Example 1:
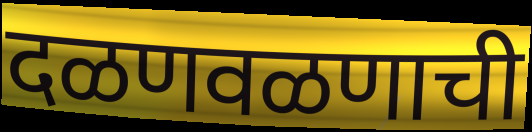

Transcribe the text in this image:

दळणवळणाची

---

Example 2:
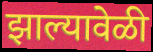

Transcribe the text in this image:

झाल्यावेळी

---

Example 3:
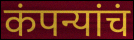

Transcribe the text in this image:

कंपन्यांचं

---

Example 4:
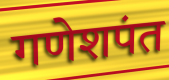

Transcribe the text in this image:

गणेशपंत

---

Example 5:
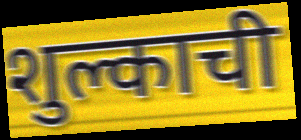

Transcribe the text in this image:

शुल्काची